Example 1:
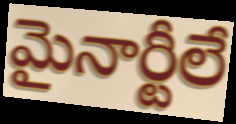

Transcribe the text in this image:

మైనార్టీలే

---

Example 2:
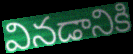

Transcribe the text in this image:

వినడానికి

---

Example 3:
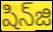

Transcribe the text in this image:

షిన్‌జి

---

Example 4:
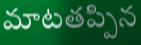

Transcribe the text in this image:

మాటతప్పిన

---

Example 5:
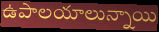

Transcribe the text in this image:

ఉపాలయాలున్నాయి